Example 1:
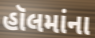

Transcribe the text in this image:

હૉલમાંના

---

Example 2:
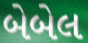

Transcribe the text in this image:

બેબેલ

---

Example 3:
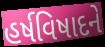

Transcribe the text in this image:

હર્ષવિષાદને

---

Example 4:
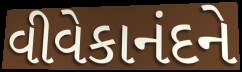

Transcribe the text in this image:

વીવેકાનંદને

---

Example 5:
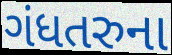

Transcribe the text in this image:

ગંધતરુના